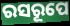
ରସରୂପେ